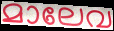
മാലേവ